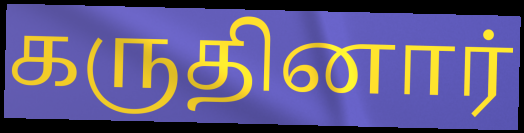
கருதினார்